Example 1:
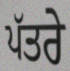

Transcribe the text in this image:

ਪੱਤਰੇ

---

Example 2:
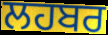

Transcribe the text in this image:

ਲਹਬਰ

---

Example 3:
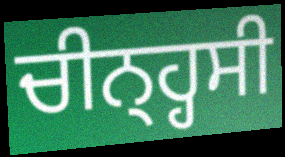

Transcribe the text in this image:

ਚੀਨ੍ਹ੍ਹਸੀ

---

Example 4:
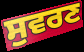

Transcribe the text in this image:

ਸੁਵਰਣ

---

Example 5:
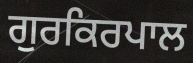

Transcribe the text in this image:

ਗੁਰਕਿਰਪਾਲ